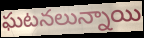
ఘటనలున్నాయి